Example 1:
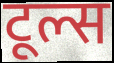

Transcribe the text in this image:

टूल्स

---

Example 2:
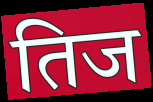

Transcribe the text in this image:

तिज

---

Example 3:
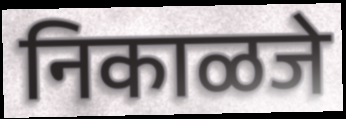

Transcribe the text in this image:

निकाळजे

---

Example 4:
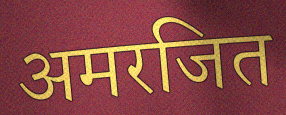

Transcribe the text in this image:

अमरजित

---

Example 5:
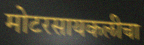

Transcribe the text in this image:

मोटरसायकलीचा